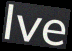
Ive